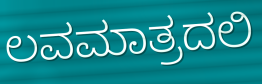
ಲವಮಾತ್ರದಲಿ